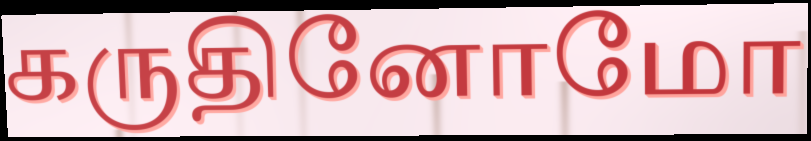
கருதினோமோ